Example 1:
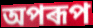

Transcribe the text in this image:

অপৰূপ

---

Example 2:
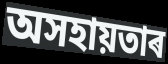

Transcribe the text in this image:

অসহায়তাৰ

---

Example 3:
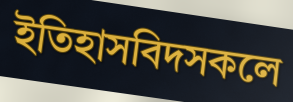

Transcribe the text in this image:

ইতিহাসবিদসকলে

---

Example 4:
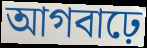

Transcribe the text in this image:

আগবাঢ়ে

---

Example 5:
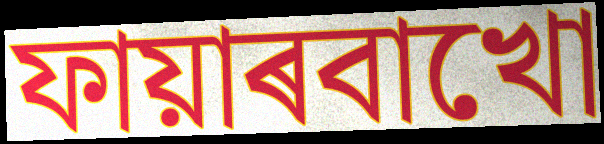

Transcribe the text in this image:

ফায়াৰবাখো